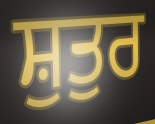
ਸ਼ੁਤੁਰ